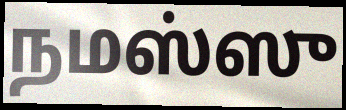
நமஸ்ஸு